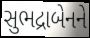
સુભદ્રાબેનને